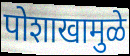
पोशाखामुळे